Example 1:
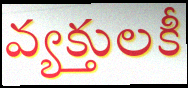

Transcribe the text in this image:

వ్యక్తులకీ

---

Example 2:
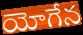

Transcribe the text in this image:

యోగేన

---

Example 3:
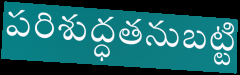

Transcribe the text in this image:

పరిశుద్ధతనుబట్టి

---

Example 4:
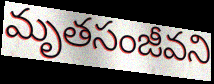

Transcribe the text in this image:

మృతసంజీవని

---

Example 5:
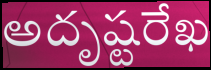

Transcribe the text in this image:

అదృష్టరేఖ